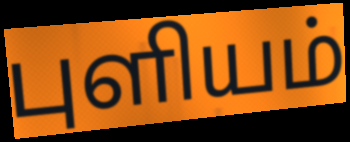
புளியம்